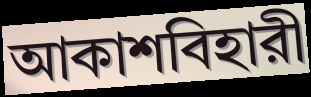
আকাশবিহারী